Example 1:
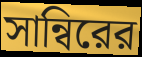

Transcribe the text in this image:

সান্বিরের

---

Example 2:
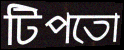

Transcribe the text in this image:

টিপতো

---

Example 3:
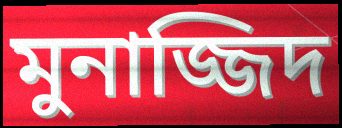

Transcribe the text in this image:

মুনাজ্জিদ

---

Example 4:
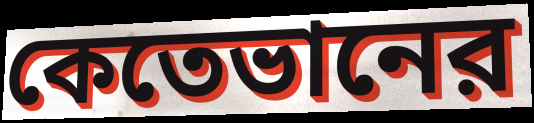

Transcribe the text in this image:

কেতেভানের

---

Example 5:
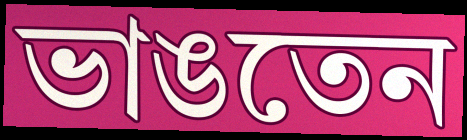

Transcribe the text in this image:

ভাঙতেন